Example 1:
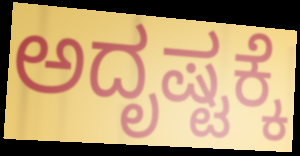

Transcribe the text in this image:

ಅದೃಷ್ಟಕ್ಕೆ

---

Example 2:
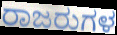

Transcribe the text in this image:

ರಾಜರುಗಳ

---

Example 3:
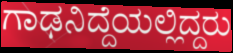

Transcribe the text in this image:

ಗಾಢನಿದ್ದೆಯಲ್ಲಿದ್ದರು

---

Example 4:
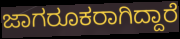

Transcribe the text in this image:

ಜಾಗರೂಕರಾಗಿದ್ದಾರೆ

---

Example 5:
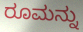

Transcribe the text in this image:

ರೂಮನ್ನು